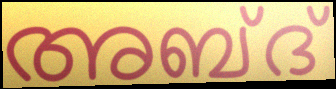
അബ്ദ്